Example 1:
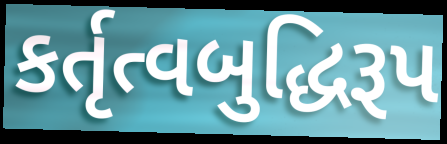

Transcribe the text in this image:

કર્તૃત્વબુદ્ધિરૂપ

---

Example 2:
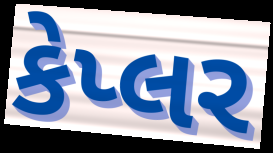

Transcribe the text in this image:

કેપ્લર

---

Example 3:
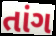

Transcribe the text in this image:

તાંગ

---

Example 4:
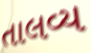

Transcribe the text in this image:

તાલવ્ય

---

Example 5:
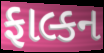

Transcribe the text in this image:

ફાલ્કન